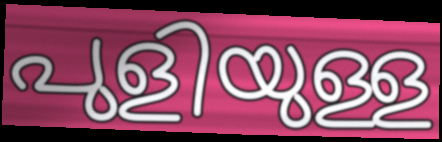
പുളിയുള്ള